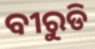
ବୀରୁଡି